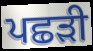
ਪਛੜੀ